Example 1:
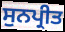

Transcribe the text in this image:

ਸੁਨਪ੍ਰੀਤ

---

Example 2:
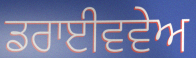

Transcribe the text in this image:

ਡਰਾਈਵਵੇਅ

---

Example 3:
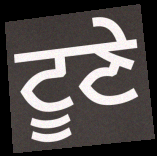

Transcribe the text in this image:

ਟੂਣੇ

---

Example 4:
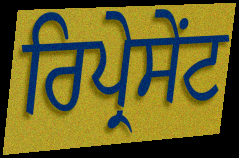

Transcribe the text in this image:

ਰਿਪ੍ਰੇਸੇੰਟ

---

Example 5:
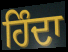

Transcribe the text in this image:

ਹਿੰਦਾ